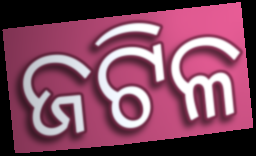
ଜଟିଳ